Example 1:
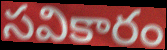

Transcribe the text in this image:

సవికారం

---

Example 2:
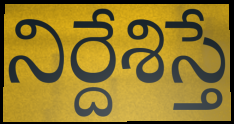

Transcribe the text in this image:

నిర్దేశిస్తే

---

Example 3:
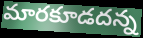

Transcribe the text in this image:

మారకూడదన్న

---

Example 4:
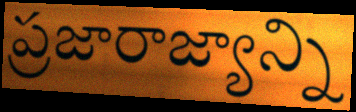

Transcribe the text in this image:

ప్రజారాజ్యాన్ని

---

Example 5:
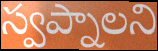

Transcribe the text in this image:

స్వప్నాలని